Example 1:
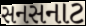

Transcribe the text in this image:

સનસનાટ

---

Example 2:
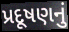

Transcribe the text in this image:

પ્રદૂષણનું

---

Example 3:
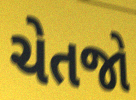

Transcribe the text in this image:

ચેતજો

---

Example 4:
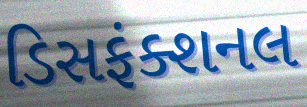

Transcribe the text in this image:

ડિસફંક્શનલ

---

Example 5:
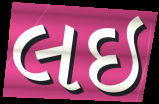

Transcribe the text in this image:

લઇ